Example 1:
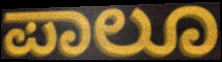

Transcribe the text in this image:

ಪಾಲೂ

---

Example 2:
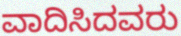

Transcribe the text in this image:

ವಾದಿಸಿದವರು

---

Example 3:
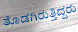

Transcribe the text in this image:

ತೊಡಗಿರುತ್ತಿದ್ದರು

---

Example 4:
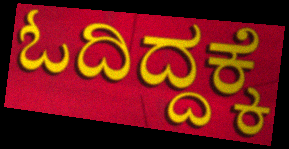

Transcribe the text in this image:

ಓದಿದ್ದಕ್ಕೆ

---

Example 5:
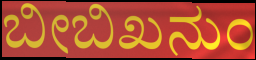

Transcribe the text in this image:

ಬೀಬಿಖನುಂ